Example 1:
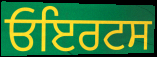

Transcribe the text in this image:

ਓਇਰਟਸ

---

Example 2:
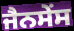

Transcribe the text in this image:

ਜੈਨਸੇਂਸ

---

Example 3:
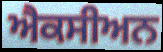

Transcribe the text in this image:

ਐਕਸੀਅਨ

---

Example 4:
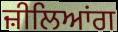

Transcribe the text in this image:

ਜ਼ੀਲਿਆਂਗ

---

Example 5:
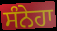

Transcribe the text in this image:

ਸੰਨੇਹਾ